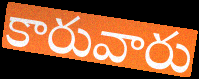
కారువారు